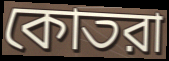
কোতরা